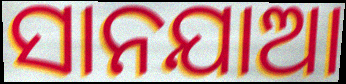
ସାନଯାଆ